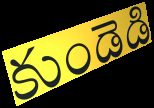
కుండెడి